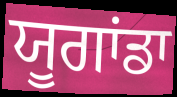
ਯੂਗਾਂਡਾ